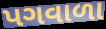
પગવાળા